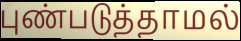
புண்படுத்தாமல்